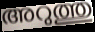
അറുത്തു